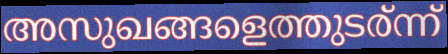
അസുഖങ്ങളെത്തുടര്ന്ന്